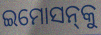
ଇମୋସନ୍‌କୁ